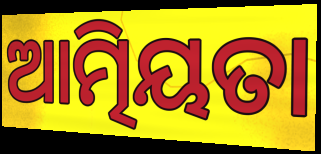
ଆତ୍ମିୟତା